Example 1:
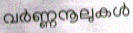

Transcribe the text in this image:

വർണ്ണനൂലുകൾ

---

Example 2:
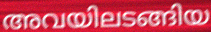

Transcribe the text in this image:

അവയിലടങ്ങിയ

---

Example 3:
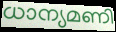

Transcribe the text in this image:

ധാന്യമണി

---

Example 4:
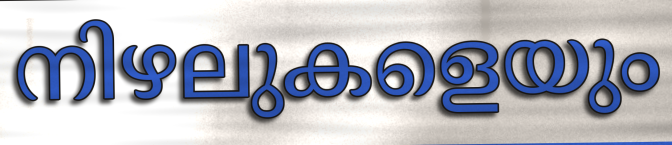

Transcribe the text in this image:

നിഴലുകളെയും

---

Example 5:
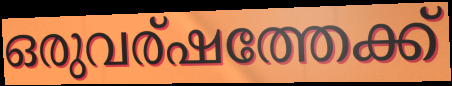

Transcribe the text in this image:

ഒരുവര്ഷത്തേക്ക്